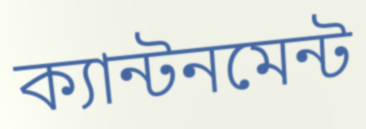
ক্যান্টনমেন্ট